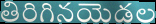
తిరిగినయెడల